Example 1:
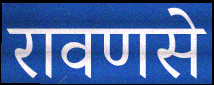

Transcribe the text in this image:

रावणसे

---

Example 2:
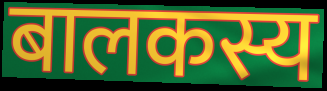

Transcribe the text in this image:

बालकस्य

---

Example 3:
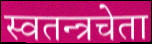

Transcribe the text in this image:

स्वतन्त्रचेता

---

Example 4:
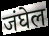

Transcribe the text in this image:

जंघेल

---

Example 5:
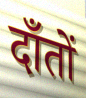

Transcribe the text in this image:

दाँतों